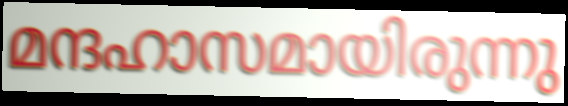
മന്ദഹാസമായിരുന്നു